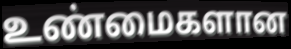
உண்மைகளான